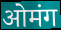
ओमंग